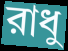
রাধু